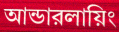
আন্ডারলায়িং